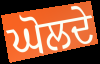
ਘੋਲਦੇ